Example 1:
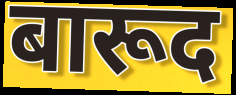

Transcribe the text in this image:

बारूद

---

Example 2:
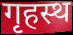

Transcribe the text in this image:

गृहस्‍थ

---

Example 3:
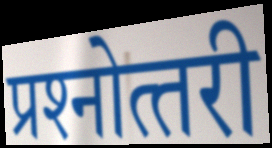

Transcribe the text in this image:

प्रश्‍नोत्‍तरी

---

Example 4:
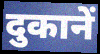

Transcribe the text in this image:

दुकानें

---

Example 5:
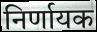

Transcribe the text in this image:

निर्णायक